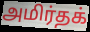
அமிர்தக்